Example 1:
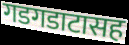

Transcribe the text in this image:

गडगडाटासह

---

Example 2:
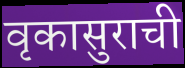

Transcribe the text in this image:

वृकासुराची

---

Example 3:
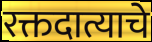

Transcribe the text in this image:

रक्तदात्याचे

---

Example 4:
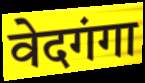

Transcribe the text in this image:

वेदगंगा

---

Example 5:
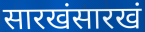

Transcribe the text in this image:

सारखंसारखं